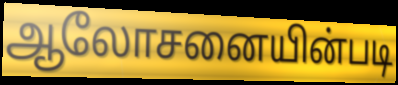
ஆலோசனையின்படி